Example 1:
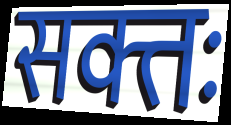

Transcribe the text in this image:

सक्तः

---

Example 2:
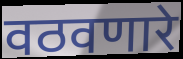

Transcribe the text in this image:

वठवणारे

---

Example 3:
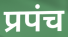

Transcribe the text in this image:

प्रपंच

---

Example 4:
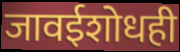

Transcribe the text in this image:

जावईशोधही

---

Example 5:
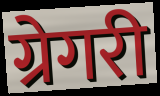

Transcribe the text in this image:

ग्रेगरी